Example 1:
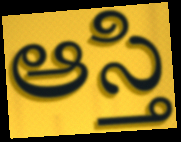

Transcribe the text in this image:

ఆస్తి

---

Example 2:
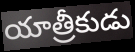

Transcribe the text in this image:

యాత్రీకుడు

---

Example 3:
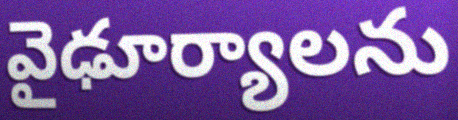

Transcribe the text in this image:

వైఢూర్యాలను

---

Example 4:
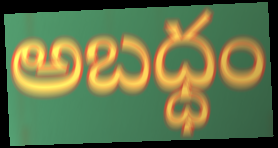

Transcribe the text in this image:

అబధ్ధం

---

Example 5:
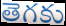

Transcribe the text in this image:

తెగకు